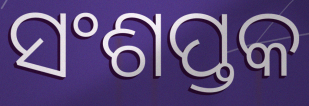
ସଂଶପ୍ତକ